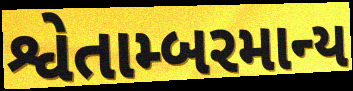
શ્વેતામ્બરમાન્ય